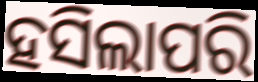
ହସିଲାପରି